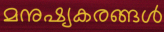
മനുഷ്യകരങ്ങൾ